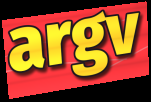
argv